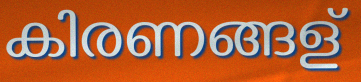
കിരണങ്ങള്